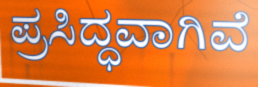
ಪ್ರಸಿದ್ಧವಾಗಿವೆ